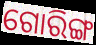
ଗୋରିଙ୍ଗ